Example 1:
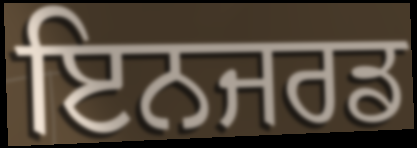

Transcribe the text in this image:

ਇਨਜਰਡ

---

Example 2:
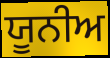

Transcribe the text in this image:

ਯੂਨੀਅ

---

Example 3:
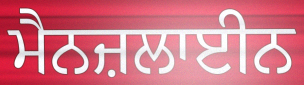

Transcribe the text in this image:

ਮੈਨਜ਼ਲਾਈਨ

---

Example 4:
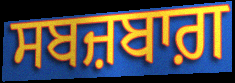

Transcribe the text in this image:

ਸਬਜ਼ਬਾਗ਼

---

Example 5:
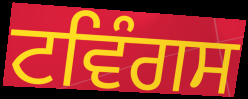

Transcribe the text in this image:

ਟਵਿੰਗਸ